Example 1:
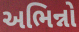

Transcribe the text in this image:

અભિન્નો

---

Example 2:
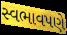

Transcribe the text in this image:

સ્વભાવપણે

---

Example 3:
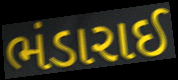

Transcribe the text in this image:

ભંડારાઈ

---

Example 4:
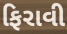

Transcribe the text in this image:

ફિરાવી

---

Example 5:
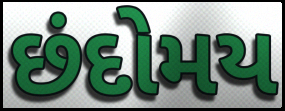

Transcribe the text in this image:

છંદોમય